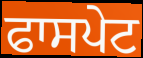
ਫਾਸਪੇਟ